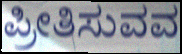
ಪ್ರೀತಿಸುವವ